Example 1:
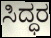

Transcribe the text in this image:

ಸಿದ್ಧರ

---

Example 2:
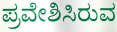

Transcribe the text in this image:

ಪ್ರವೇಶಿಸಿರುವ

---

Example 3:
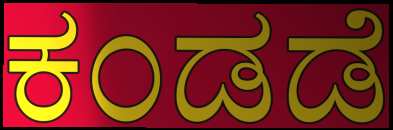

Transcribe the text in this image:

ಕಂಡಡೆ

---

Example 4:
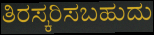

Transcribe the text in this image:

ತಿರಸ್ಕರಿಸಬಹುದು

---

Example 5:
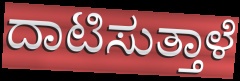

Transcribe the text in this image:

ದಾಟಿಸುತ್ತಾಳೆ